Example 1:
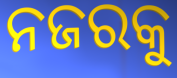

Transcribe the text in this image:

ନଜରକୁ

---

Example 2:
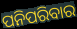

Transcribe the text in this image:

ପନିପରିବାର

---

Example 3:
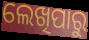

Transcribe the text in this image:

ଲେଖିପାରୁ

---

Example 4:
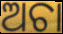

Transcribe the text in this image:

ଅଚା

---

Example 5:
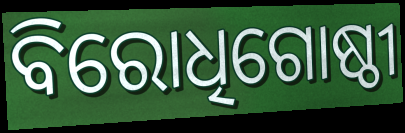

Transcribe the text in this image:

ବିରୋଧିଗୋଷ୍ଠୀ